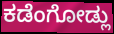
ಕಡೆಂಗೋಡ್ಲು